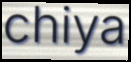
chiya